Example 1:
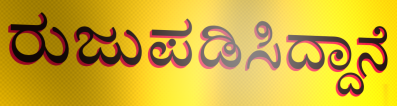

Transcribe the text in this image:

ರುಜುಪಡಿಸಿದ್ದಾನೆ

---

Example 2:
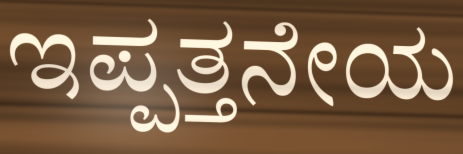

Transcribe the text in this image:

ಇಪ್ಪತ್ತನೇಯ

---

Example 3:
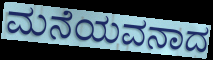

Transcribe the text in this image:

ಮನೆಯವನಾದ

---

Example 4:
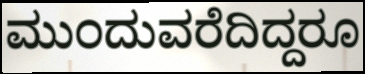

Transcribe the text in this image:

ಮುಂದುವರೆದಿದ್ದರೂ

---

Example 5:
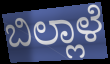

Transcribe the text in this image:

ಬಿಲ್ಲಾಳೆ